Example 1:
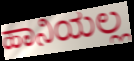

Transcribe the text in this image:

ಹಾನಿಯಲ್ಲ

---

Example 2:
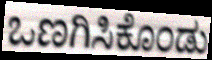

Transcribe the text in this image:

ಒಣಗಿಸಿಕೊಂಡು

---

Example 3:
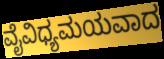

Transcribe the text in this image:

ವೈವಿಧ್ಯಮಯವಾದ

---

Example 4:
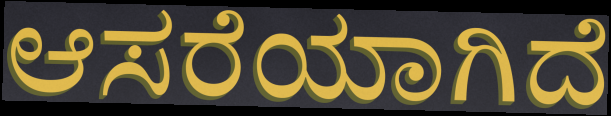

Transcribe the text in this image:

ಆಸರೆಯಾಗಿದೆ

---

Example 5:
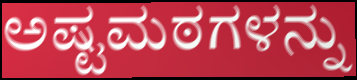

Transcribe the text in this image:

ಅಷ್ಟಮಠಗಳನ್ನು